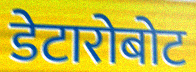
डेटारोबोट